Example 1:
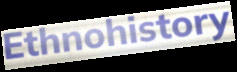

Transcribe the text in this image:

Ethnohistory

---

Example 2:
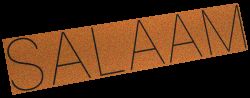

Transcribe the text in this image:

SALAAM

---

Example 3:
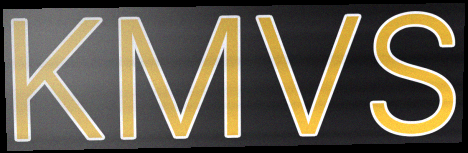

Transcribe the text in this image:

KMVS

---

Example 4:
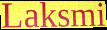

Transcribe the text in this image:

Laksmi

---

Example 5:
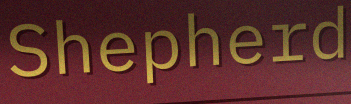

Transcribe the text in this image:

Shepherd